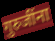
गुरुजींना